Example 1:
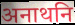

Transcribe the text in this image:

अनाथनि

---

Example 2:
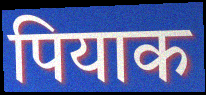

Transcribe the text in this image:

पियाक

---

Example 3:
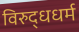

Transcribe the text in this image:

विरुद्धधर्म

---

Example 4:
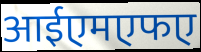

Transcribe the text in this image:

आईएमएफए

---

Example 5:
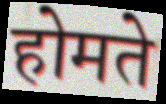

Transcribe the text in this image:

होमते